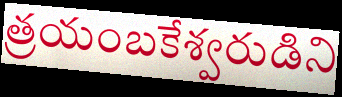
త్రయంబకేశ్వరుడిని